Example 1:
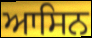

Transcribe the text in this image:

ਆਸਿਨ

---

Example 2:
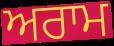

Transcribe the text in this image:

ਅਰਾਮ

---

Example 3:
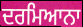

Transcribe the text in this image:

ਦਰਮਿਆਨਾ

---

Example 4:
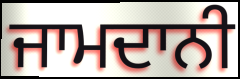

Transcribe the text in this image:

ਜਾਮਦਾਨੀ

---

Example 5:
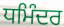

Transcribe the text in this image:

ਧਮਿੰਦਰ